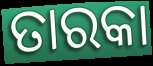
ତାରକା